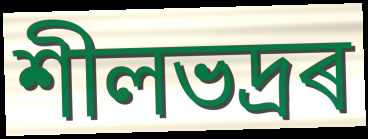
শীলভদ্ৰৰ